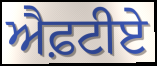
ਐਫ਼ਟੀਏ